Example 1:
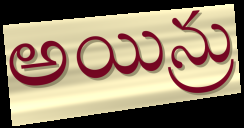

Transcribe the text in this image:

అయిన్రు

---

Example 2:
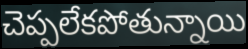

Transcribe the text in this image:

చెప్పలేకపోతున్నాయి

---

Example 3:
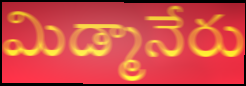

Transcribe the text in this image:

మిడ్మానేరు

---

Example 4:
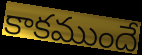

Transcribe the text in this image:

కాకముందే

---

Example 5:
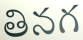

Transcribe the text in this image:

తినగ